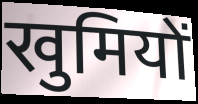
खुमियों